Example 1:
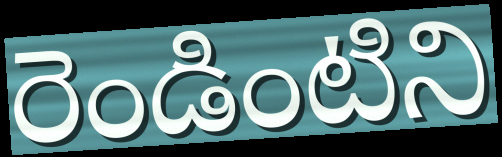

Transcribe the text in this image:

రెండింటిని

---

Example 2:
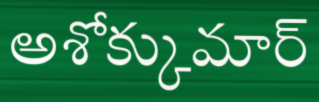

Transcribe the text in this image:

అశోక్కుమార్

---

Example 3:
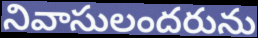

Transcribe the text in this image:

నివాసులందరును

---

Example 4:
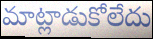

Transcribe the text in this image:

మాట్లాడుకోలేదు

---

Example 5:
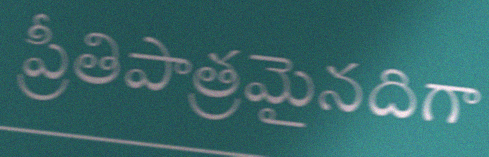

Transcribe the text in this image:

ప్రీతిపాత్రమైనదిగా